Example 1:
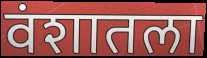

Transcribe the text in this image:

वंशातला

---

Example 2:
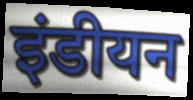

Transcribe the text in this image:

इंडीयन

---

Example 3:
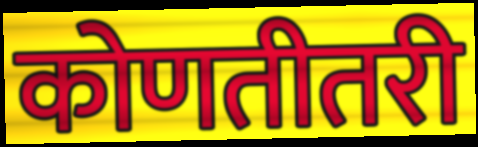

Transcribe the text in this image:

कोणतीतरी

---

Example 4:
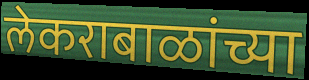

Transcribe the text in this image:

लेकराबाळांच्या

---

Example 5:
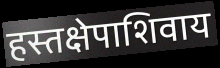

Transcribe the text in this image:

हस्तक्षेपाशिवाय